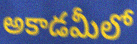
అకాడమీలో